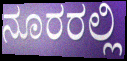
ನೂರರಲ್ಲಿ